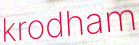
krodham